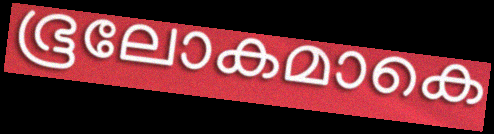
ഭൂലോകമാകെ